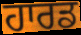
ਹਾਰਡ